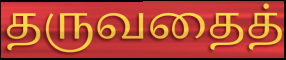
தருவதைத்